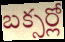
బక్సర్లో